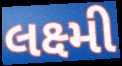
લક્ષ્મી